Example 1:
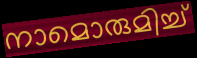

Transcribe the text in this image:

നാമൊരുമിച്ച്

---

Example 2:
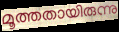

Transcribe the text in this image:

മൂത്തതായിരുന്നു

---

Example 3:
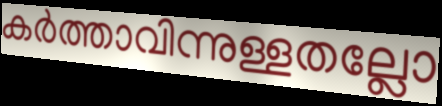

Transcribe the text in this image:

കർത്താവിന്നുള്ളതല്ലോ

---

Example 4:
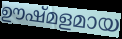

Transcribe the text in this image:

ഊഷ്മളമായ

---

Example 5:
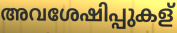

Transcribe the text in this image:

അവശേഷിപ്പുകള്